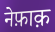
नेफ़ाक़